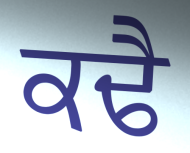
ਕਢੈ